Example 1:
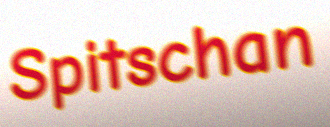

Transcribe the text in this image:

Spitschan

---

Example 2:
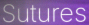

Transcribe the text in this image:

Sutures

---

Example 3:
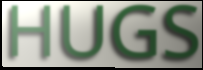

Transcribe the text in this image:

HUGS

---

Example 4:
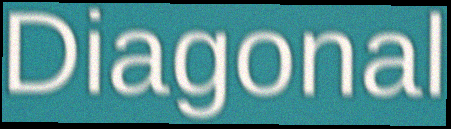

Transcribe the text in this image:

Diagonal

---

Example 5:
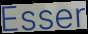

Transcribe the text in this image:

Esser